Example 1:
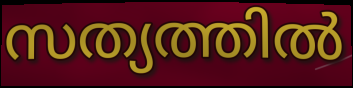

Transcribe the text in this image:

സത്യത്തിൽ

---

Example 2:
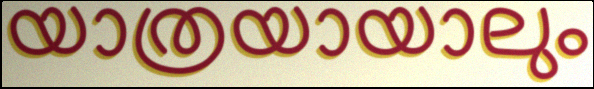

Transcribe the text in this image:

യാത്രയായാലും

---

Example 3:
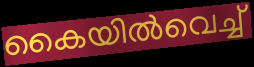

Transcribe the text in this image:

കൈയിൽവെച്ച്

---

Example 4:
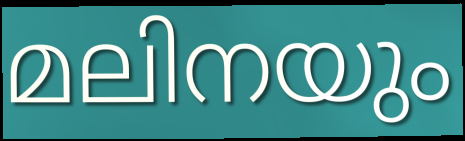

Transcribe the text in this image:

മലിനയും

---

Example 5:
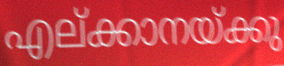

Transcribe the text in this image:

എല്ക്കാനയ്ക്കു